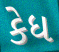
કેધ